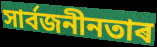
সাৰ্বজনীনতাৰ